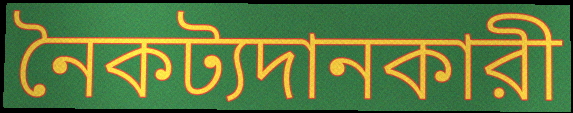
নৈকট্যদানকারী